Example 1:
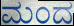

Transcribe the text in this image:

ಮಂದ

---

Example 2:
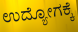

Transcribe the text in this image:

ಉದ್ಯೋಗಕ್ಕೆ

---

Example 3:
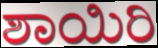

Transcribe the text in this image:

ಶಾಯಿರಿ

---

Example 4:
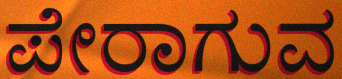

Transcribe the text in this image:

ಪೇರಾಗುವ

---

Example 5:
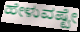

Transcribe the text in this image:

ಹೇಳುವಷ್ಟೇ